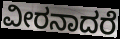
ವೀರನಾದರೆ